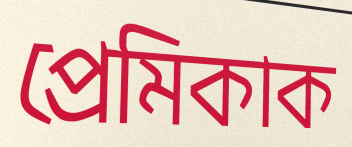
প্ৰেমিকাক